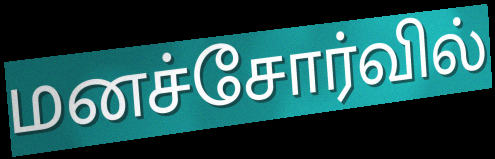
மனச்சோர்வில்